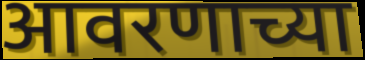
आवरणाच्या